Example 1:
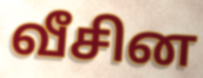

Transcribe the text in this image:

வீசின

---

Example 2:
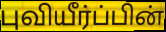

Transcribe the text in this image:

புவியீர்ப்பின்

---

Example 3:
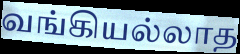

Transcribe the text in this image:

வங்கியல்லாத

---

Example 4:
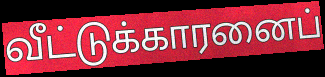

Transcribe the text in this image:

வீட்டுக்காரனைப்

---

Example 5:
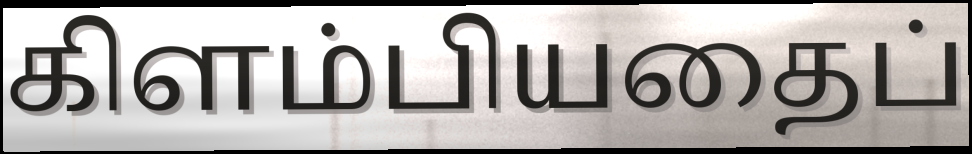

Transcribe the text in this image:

கிளம்பியதைப்